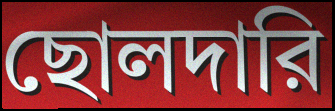
ছোলদারি